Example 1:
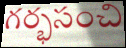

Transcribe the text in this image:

గర్భసంచి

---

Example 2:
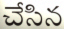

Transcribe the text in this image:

చేసిన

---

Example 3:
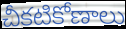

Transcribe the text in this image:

చీకటికోణాలు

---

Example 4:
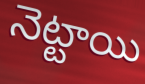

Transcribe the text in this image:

నెట్టాయి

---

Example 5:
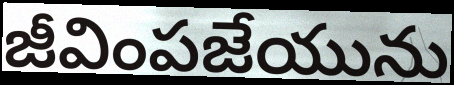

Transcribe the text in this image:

జీవింపజేయును